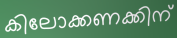
കിലോക്കണക്കിന്